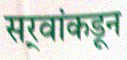
सर्वांकडून